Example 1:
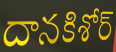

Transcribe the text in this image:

దానకిశోర్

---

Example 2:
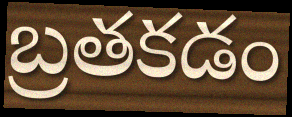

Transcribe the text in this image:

బ్రతకడం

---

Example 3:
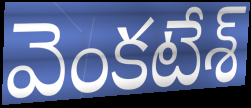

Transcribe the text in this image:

వెంకటేశ్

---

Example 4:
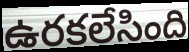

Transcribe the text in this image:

ఉరకలేసింది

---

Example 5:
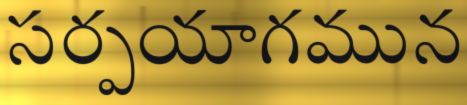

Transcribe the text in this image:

సర్పయాగమున